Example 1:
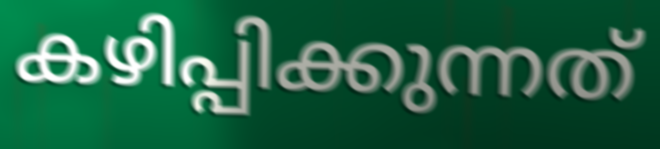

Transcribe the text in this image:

കഴിപ്പിക്കുന്നത്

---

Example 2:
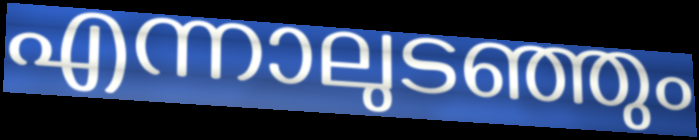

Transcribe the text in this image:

എന്നാലുടഞ്ഞും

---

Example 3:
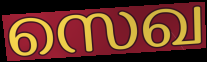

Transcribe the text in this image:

സെഖ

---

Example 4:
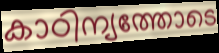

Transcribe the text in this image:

കാഠിന്യത്തോടെ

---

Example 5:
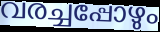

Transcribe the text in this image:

വരച്ചപ്പോഴും